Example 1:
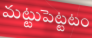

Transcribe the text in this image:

మట్టుపెట్టటం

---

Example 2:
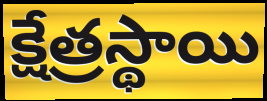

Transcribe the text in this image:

క్షేత్రస్థాయి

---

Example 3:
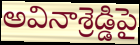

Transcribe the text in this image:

అవినాశ్రెడ్డిపై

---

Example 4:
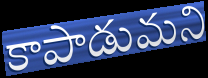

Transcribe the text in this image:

కాపాడుమని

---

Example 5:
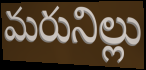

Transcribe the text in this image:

మరునిల్లు